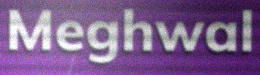
Meghwal